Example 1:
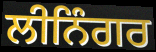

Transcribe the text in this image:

ਲੀਨਿੰਗਰ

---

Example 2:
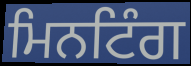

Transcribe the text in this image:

ਮਿਨਟਿੰਗ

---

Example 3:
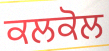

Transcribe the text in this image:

ਕਲਕੋਲ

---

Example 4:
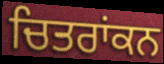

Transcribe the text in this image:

ਚਿਤਰਾਂਕਨ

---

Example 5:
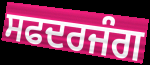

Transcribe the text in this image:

ਸਫਦਰਜੰਗ